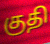
குதி